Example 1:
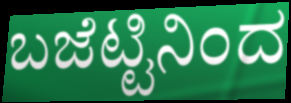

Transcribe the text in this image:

ಬಜೆಟ್ಟಿನಿಂದ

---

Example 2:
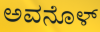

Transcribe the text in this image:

ಅವನೊಳ್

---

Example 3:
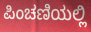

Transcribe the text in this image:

ಪಿಂಚಣಿಯಲ್ಲಿ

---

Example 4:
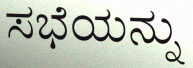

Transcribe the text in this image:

ಸಭೆಯನ್ನು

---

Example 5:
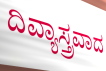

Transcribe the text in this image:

ದಿವ್ಯಾಸ್ತ್ರವಾದ